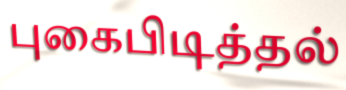
புகைபிடித்தல்